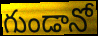
గుండానో